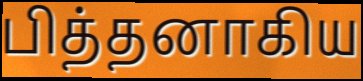
பித்தனாகிய